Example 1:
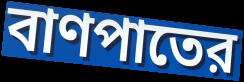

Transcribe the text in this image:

বাণপাতের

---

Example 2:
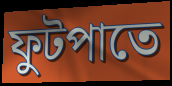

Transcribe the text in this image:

ফুটপাতে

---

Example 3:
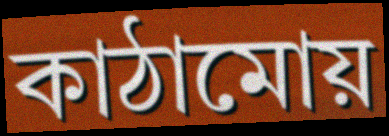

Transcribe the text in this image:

কাঠামোয়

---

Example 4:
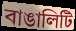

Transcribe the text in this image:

বাঙালিটি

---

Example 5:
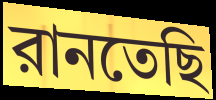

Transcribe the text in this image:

রানতেছি